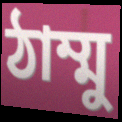
ঠাম্মু